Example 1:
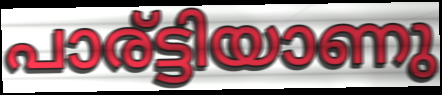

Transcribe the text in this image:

പാര്ട്ടിയാണു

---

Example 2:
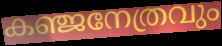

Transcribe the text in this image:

കഞ്ജനേത്രവും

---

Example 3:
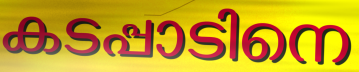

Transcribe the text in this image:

കടപ്പാടിനെ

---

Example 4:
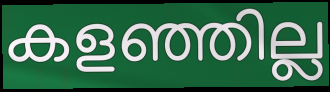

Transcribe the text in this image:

കളഞ്ഞില്ല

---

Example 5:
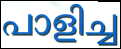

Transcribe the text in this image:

പാളിച്ച